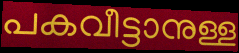
പകവീട്ടാനുള്ള